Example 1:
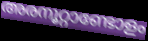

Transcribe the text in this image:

അരനൂറ്റാണ്ടോളം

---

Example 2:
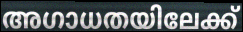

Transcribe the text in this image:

അഗാധതയിലേക്ക്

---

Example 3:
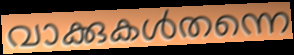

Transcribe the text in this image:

വാക്കുകൾതന്നെ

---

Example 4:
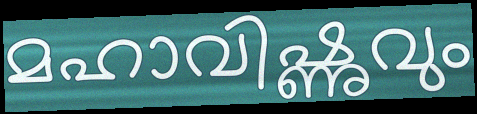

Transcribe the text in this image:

മഹാവിഷ്ണുവും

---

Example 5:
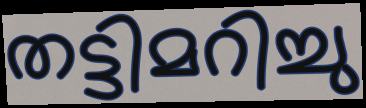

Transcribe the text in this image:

തട്ടിമറിച്ചു